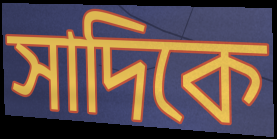
সাদিকে